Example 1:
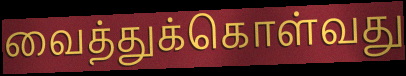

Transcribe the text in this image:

வைத்துக்கொள்வது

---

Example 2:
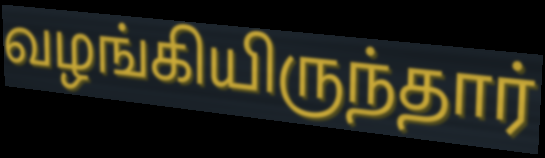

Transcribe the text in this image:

வழங்கியிருந்தார்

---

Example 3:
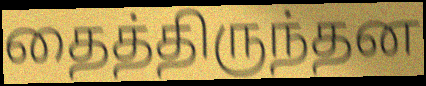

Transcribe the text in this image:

தைத்திருந்தன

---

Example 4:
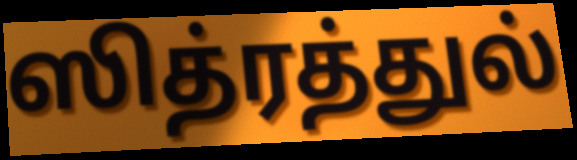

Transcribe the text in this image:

ஸித்ரத்துல்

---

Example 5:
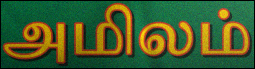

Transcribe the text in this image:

அமிலம்